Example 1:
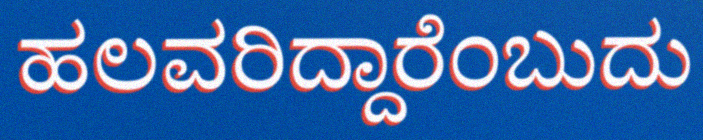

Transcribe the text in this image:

ಹಲವರಿದ್ದಾರೆಂಬುದು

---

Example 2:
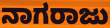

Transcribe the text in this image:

ನಾಗರಾಜು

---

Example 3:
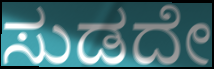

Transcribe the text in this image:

ಸುಡದೇ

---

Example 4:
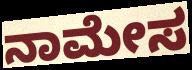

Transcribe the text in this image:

ನಾಮೇಸ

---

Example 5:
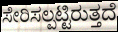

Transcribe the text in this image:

ಸೇರಿಸಲ್ಪಟ್ಟಿರುತ್ತದೆ